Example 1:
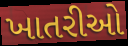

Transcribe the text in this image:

ખાતરીઓ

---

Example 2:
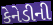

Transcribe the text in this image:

કેનેડીની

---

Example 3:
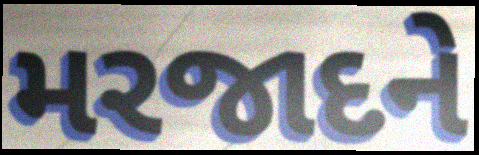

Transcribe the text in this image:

મરજાદને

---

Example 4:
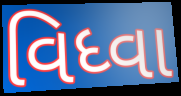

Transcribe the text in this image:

વિધ્વા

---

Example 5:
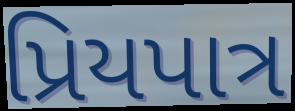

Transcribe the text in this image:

પ્રિયપાત્ર